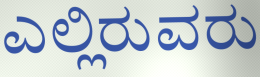
ಎಲ್ಲಿರುವರು